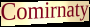
Comirnaty